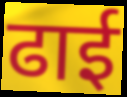
ढाई